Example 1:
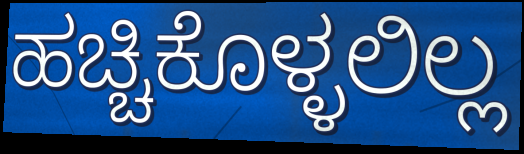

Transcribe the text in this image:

ಹಚ್ಚಿಕೊಳ್ಳಲಿಲ್ಲ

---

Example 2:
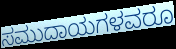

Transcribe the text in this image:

ಸಮುದಾಯಗಳವರೂ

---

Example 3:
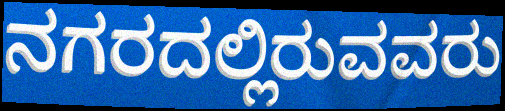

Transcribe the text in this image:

ನಗರದಲ್ಲಿರುವವರು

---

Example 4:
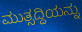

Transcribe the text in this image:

ಮುತ್ಸದ್ದಿಯನ್ನು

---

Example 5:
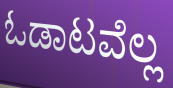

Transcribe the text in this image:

ಓಡಾಟವೆಲ್ಲ